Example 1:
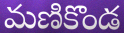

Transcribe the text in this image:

మణికొండ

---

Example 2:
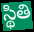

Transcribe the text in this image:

స్థితి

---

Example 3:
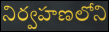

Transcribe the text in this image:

నిర్వహణలోని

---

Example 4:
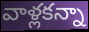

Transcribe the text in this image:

వాళ్లకన్నా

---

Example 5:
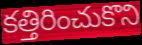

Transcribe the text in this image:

కత్తిరించుకొని